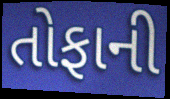
તોફાની